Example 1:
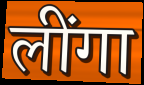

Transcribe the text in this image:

लींगा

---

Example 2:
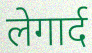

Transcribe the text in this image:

लेगार्द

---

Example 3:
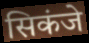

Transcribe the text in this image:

सिकंजे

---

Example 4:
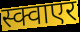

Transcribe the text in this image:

स्क्वाएर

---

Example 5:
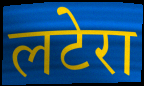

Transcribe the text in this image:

लटेरा